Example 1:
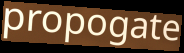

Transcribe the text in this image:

propogate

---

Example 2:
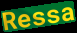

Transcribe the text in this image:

Ressa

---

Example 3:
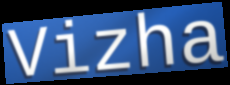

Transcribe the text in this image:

Vizha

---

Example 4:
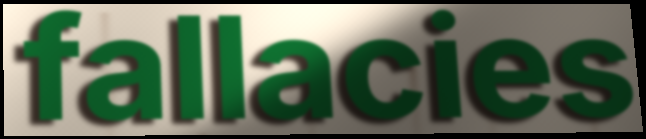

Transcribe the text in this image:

fallacies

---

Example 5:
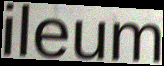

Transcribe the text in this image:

ileum